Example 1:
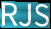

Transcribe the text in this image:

RJS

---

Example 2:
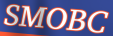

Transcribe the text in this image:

SMOBC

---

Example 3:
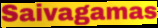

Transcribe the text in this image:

Saivagamas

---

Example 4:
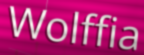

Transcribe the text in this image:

Wolffia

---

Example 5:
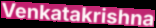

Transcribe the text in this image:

Venkatakrishna